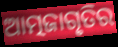
ଆତ୍ମଜାଗୃତିର